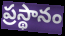
ప్రస్థానం